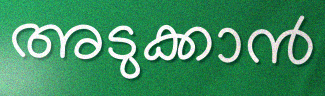
അടുക്കാൻ